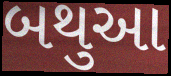
બથુઆ